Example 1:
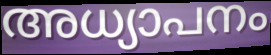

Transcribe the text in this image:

അധ്യാപനം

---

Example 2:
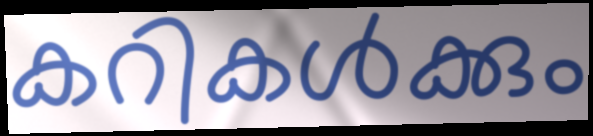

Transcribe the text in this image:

കറികൾക്കും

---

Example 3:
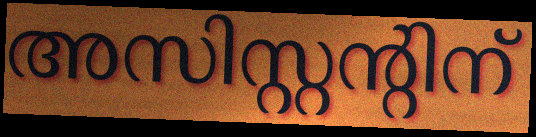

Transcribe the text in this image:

അസിസ്റ്റന്റിന്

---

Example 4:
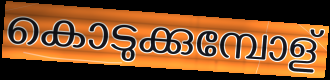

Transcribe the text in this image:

കൊടുക്കുമ്പോള്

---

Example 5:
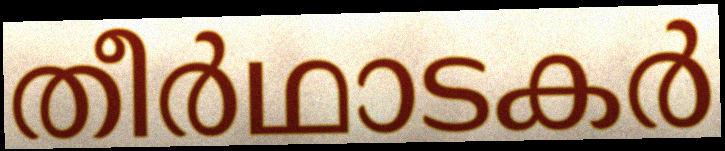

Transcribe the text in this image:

തീർഥാടകർ